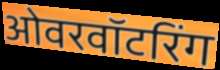
ओवरवॉटरिंग